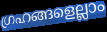
ഗ്രഹങ്ങളെല്ലാം